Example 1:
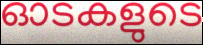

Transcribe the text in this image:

ഓടകളുടെ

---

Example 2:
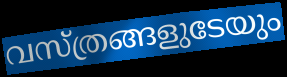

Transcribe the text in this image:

വസ്ത്രങ്ങളുടേയും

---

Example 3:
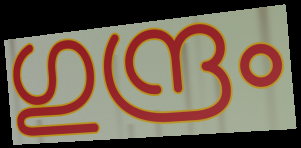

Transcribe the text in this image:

ഗുന്ദ്രം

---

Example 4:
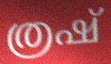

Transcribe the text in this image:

ത്രഷ്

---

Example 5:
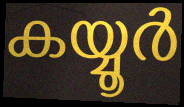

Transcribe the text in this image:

കയ്യൂർ